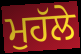
ਮੁਹੱਲੇ